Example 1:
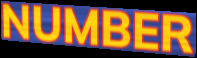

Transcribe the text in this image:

NUMBER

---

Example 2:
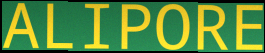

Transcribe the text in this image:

ALIPORE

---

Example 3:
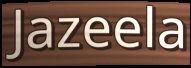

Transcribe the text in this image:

Jazeela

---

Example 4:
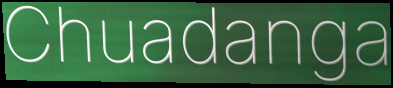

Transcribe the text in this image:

Chuadanga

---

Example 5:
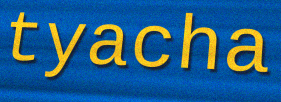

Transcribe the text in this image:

tyacha